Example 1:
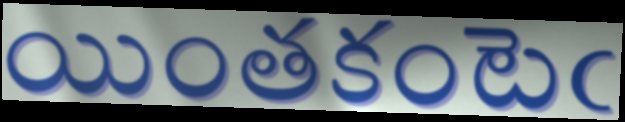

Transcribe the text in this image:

యింతకంటెఁ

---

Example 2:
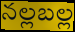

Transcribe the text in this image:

నల్లబల్ల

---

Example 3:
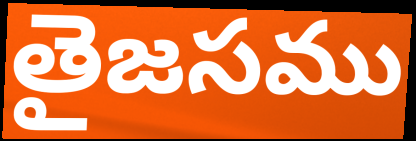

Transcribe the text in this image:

తైజసము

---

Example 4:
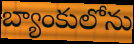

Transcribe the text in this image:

బ్యాంకులోను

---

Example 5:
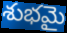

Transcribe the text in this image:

శుభమై